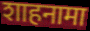
शाहनामा